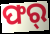
ଫର୍